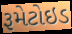
રૂમેટોઇડ